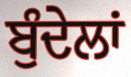
ਬੁੰਦੇਲਾਂ